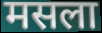
मसला